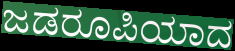
ಜಡರೂಪಿಯಾದ